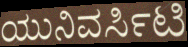
ಯುನಿವರ್ಸಿಟಿ